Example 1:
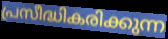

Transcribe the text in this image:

പ്രസീദ്ധികരിക്കുന്ന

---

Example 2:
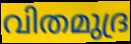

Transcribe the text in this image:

വിതമുദ്ര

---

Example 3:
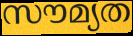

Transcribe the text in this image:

സൗമ്യത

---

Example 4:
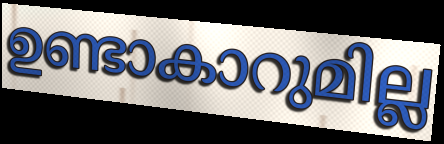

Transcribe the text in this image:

ഉണ്ടാകാറുമില്ല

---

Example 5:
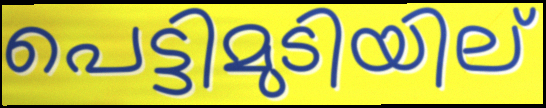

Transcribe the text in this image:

പെട്ടിമുടിയില്